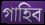
গাহিব